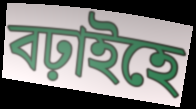
বঢ়াইহে